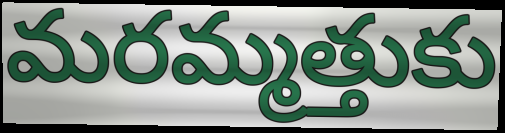
మరమ్మత్తుకు